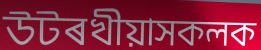
উটৰখীয়াসকলক